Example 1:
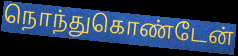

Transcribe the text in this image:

நொந்துகொண்டேன்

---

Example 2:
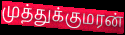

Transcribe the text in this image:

முத்துக்குமரன்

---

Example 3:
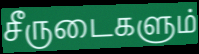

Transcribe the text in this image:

சீருடைகளும்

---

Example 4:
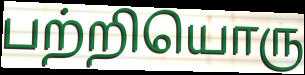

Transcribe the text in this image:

பற்றியொரு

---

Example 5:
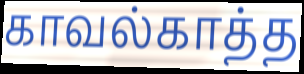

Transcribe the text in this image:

காவல்காத்த